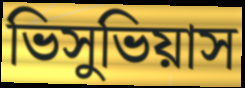
ভিসুভিয়াস